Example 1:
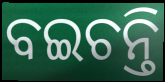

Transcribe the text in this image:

ବଇଚନ୍ତି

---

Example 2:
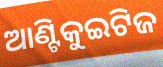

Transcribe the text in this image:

ଆଣ୍ଟିକୁଇଟିଜ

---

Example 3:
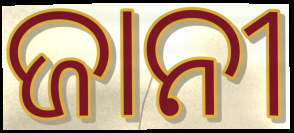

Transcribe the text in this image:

ଜାନୀ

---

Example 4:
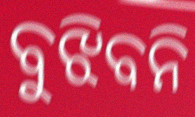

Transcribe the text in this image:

ବୁଝିବନି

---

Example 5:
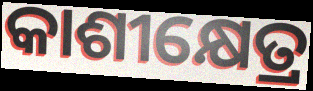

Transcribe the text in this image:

କାଶୀକ୍ଷେତ୍ର